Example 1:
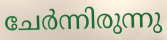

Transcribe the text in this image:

ചേർന്നിരുന്നു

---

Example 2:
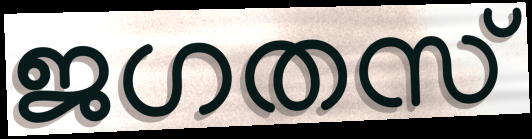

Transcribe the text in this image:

ജഗതസ്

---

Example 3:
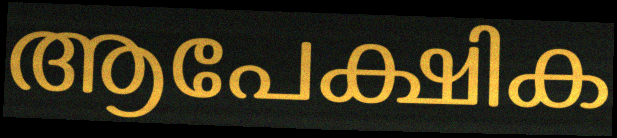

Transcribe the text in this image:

ആപേക്ഷിക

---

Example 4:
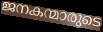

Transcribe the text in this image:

ജനകന്മാരുടെ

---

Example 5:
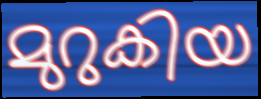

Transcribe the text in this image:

മുറുകിയ